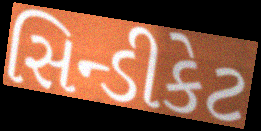
સિન્ડીકેટ